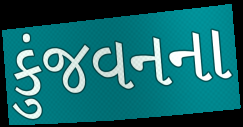
કુંજવનના